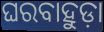
ଘରବାହୁଡ଼ା